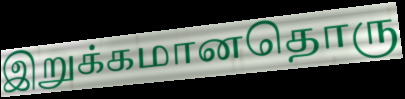
இறுக்கமானதொரு